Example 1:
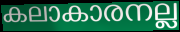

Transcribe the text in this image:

കലാകാരനല്ല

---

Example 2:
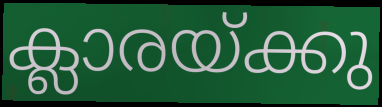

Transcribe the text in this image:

ക്ലാരയ്ക്കു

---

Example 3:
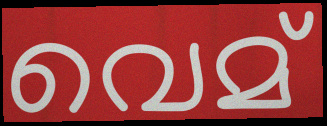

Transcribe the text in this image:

വെമ്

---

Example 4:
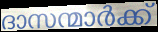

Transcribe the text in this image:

ദാസന്മാർക്ക്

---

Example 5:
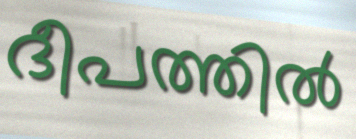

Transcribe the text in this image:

ദീപത്തിൽ